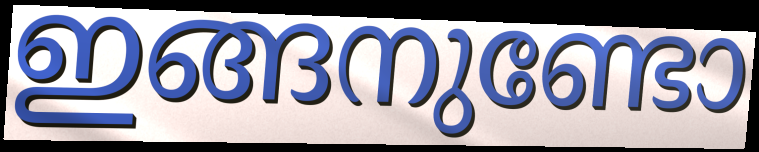
ഇങ്ങനുണ്ടോ